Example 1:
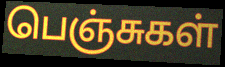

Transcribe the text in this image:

பெஞ்சுகள்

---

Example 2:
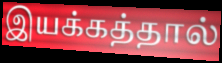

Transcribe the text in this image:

இயக்கத்தால்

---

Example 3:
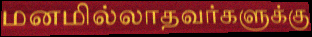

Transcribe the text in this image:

மனமில்லாதவர்களுக்கு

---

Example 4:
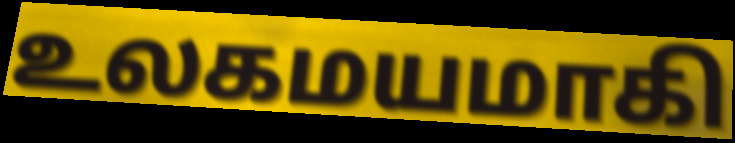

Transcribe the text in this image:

உலகமயமாகி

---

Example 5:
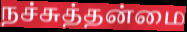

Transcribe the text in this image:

நச்சுத்தன்மை